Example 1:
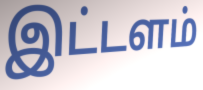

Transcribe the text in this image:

இட்டளம்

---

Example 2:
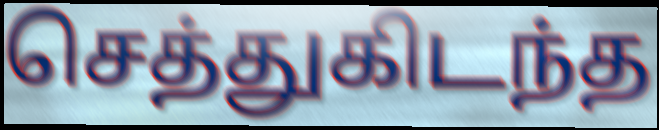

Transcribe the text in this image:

செத்துகிடந்த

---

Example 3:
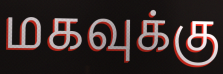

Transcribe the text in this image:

மகவுக்கு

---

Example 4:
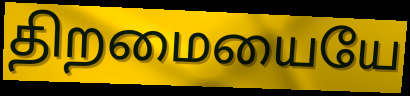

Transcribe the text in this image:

திறமையையே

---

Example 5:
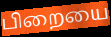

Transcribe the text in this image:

பிறையை